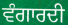
ਵੰਗਾਰਦੀ